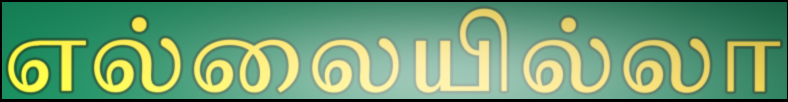
எல்லையில்லா